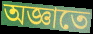
অজ্ঞাতে